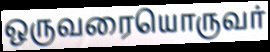
ஒருவரையொருவர்